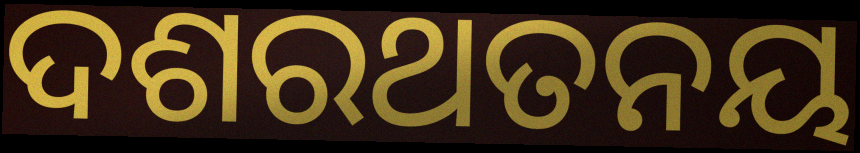
ଦଶରଥତନୟ